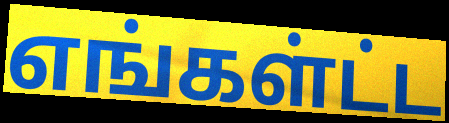
எங்கள்ட்ட